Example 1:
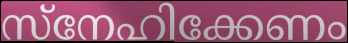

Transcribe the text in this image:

സ്നേഹിക്കേണം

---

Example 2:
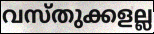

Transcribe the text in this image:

വസ്തുക്കളല്ല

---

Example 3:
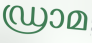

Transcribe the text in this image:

ഡ്രാമ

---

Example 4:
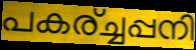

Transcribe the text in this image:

പകര്ച്ചപ്പനി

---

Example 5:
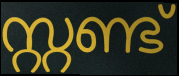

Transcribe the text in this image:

സ്റ്റണ്ട്